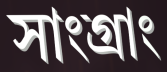
সাংগ্রাং